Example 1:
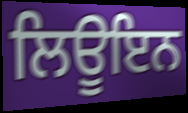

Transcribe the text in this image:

ਲਿਊਇਨ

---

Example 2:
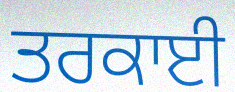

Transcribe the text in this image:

ਤਰਕਾਈ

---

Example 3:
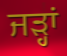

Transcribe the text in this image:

ਜੜ੍ਹਾਂ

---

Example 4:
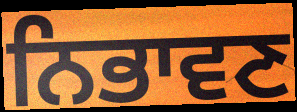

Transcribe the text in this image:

ਨਿਭਾਵਣ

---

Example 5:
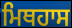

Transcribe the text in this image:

ਮਿਥਹਾਸ